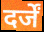
दर्जें